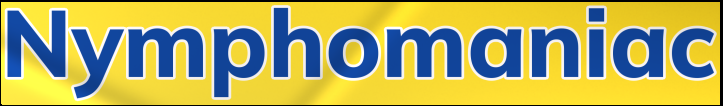
Nymphomaniac